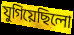
যুগিয়েছিলো